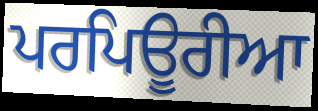
ਪਰਪਿਊਰੀਆ